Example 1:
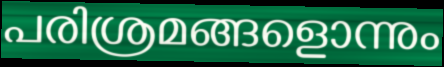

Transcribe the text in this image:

പരിശ്രമങ്ങളൊന്നും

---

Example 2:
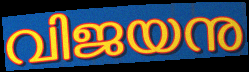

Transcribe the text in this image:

വിജയനു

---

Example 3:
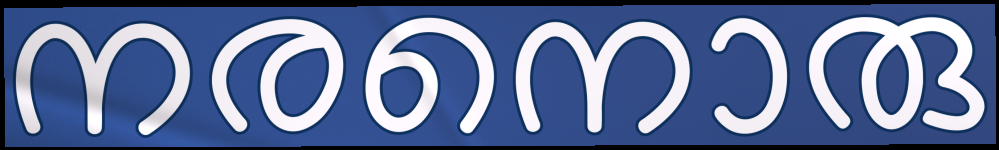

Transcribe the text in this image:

നരനൊരു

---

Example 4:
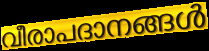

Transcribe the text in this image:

വീരാപദാനങ്ങൾ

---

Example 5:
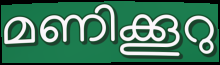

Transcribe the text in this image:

മണിക്കൂറു